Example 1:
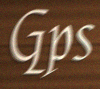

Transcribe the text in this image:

Gps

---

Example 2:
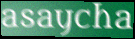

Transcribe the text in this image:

asaycha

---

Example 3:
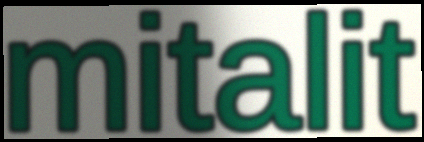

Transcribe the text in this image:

mitalit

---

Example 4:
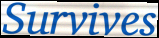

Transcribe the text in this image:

Survives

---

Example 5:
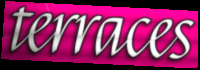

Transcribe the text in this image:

terraces